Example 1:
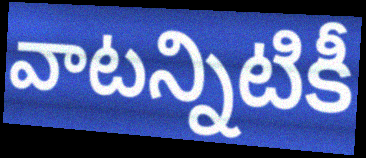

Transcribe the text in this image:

వాటన్నిటికీ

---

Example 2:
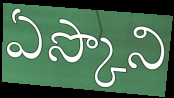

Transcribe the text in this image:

ఏస్కొని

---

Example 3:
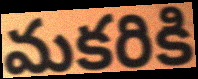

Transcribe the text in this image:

మకరికి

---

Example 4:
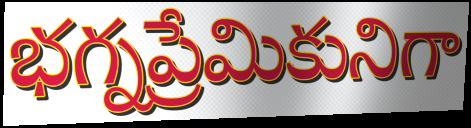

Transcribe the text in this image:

భగ్నప్రేమికునిగా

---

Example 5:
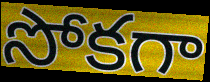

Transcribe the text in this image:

సోకగా